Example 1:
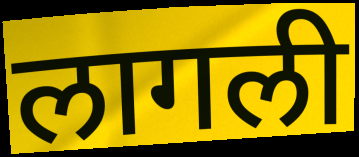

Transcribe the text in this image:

लागली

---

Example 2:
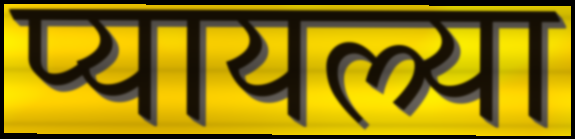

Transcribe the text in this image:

प्यायल्या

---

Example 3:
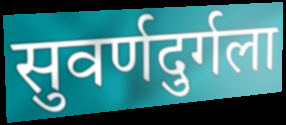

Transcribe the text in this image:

सुवर्णदुर्गला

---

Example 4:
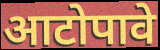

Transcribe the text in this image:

आटोपावे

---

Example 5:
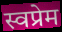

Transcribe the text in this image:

स्वप्रेम